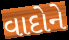
વાદોને